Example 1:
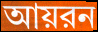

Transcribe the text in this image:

আয়রন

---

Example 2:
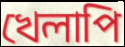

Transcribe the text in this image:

খেলাপি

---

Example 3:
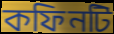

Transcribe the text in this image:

কফিনটি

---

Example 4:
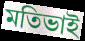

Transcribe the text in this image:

মতিভাই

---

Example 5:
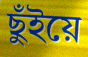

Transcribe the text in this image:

ছুঁইয়ে